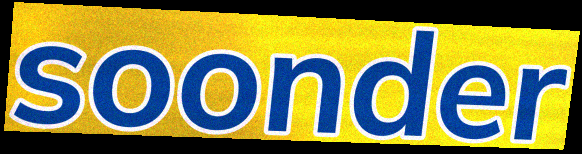
soonder